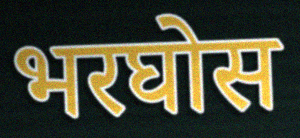
भरघोस